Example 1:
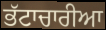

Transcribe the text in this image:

ਭੱਟਾਚਾਰੀਆ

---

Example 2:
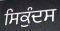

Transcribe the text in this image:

ਸਿਕੁੰਦਸ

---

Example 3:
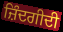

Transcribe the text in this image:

ਜ਼ਿੰਦਗੀਦੀ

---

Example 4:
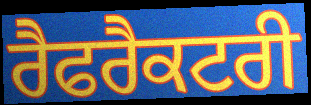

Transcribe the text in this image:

ਰੈਫਰੈਕਟਰੀ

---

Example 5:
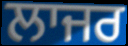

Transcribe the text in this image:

ਲਾਜਰ